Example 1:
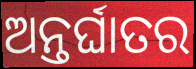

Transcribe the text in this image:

ଅନ୍ତର୍ଘାତର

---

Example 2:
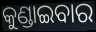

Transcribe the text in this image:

କୁଣ୍ଡାଇବାର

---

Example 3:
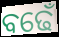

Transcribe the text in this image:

ବଢେଁ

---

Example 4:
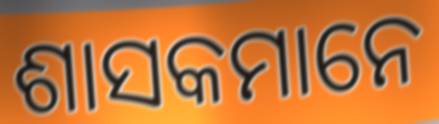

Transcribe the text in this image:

ଶାସକମାନେ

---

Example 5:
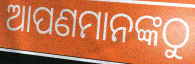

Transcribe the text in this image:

ଆପଣମାନଙ୍କଠୁ